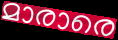
മാരാരെ